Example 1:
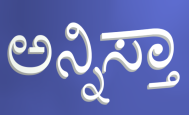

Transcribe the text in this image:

ಅನ್ನಿಸ್ತಾ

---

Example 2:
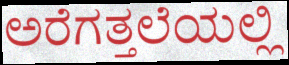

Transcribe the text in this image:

ಅರೆಗತ್ತಲೆಯಲ್ಲಿ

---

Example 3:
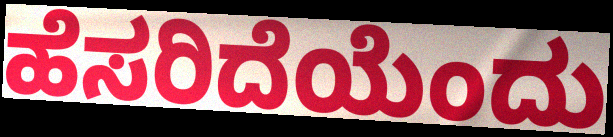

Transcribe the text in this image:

ಹೆಸರಿದೆಯೆಂದು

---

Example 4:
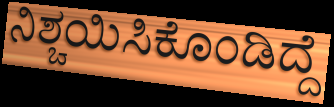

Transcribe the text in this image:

ನಿಶ್ಚಯಿಸಿಕೊಂಡಿದ್ದೆ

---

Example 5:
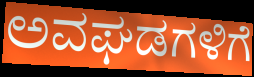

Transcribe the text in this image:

ಅವಘಡಗಳಿಗೆ